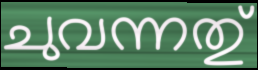
ചുവന്നതു്